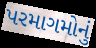
પરમાગમોનું